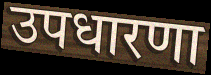
उपधारणा